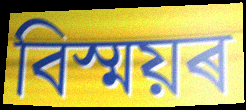
বিস্ময়ৰ